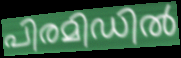
പിരമിഡിൽ